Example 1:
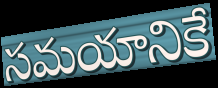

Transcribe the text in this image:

సమయానికే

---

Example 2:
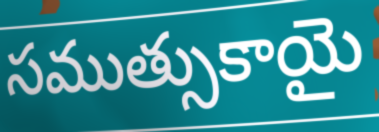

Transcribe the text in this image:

సముత్సుకాయై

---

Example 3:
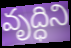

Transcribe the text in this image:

వృద్ధిని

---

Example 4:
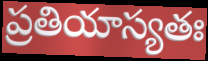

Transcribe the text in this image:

ప్రతియాస్యతః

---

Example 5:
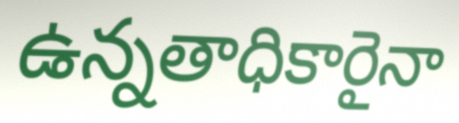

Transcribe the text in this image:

ఉన్నతాధికారైనా